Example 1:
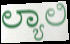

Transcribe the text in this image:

ಲ್ಯಾಲಿ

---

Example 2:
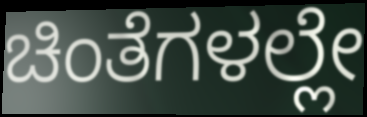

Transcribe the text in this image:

ಚಿಂತೆಗಳಲ್ಲೇ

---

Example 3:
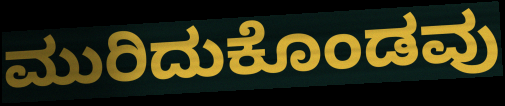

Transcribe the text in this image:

ಮುರಿದುಕೊಂಡವು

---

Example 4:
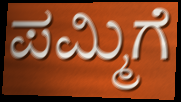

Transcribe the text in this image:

ಪಮ್ಮಿಗೆ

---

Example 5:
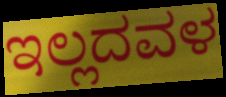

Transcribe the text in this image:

ಇಲ್ಲದವಳ